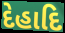
દેહાદિ